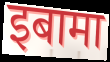
इबामा